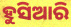
ହୁସିଆରି